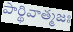
పార్థివాత్మజః